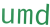
umd